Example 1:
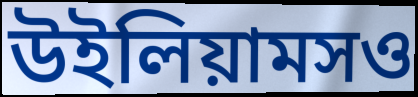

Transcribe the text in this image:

উইলিয়ামসও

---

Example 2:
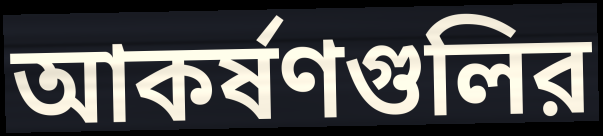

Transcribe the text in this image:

আকর্ষণগুলির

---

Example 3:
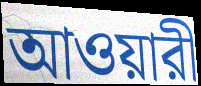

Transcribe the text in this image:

আওয়ারী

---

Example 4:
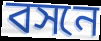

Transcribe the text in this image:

বসনে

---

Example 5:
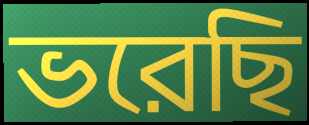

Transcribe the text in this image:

ভরেছি